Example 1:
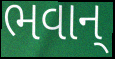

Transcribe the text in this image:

ભવાન્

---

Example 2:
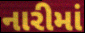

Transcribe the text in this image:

નારીમાં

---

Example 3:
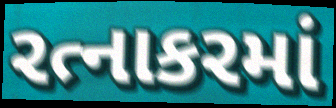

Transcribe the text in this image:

રત્નાકરમાં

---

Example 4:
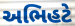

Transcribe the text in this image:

અભિહટે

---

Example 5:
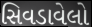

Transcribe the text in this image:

સિવડાવેલો